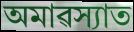
অমাৱস্যাত